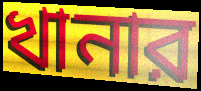
খানার